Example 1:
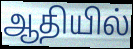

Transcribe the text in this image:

ஆதியில்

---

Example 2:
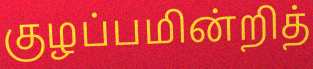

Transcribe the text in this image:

குழப்பமின்றித்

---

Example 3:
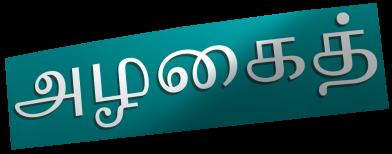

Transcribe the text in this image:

அழகைத்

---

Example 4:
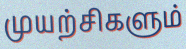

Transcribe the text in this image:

முயற்சிகளும்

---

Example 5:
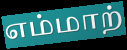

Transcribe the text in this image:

எம்மாற்